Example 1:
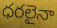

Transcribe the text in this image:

ధరలైనా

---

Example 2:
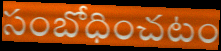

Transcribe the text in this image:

సంబోధించటం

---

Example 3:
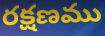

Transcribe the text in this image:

రక్షణము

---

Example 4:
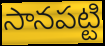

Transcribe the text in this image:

సానపట్టి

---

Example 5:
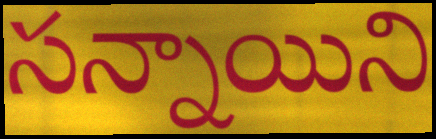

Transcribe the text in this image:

సన్నాయిని